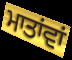
ਮਾਤਾਂਵਾਂ